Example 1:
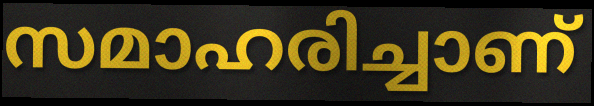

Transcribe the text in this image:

സമാഹരിച്ചാണ്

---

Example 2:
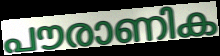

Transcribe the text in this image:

പൗരാണിക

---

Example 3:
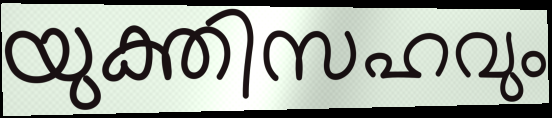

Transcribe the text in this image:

യുക്തിസഹവും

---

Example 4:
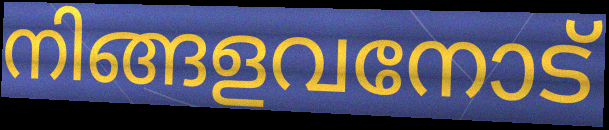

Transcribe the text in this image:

നിങ്ങളവനോട്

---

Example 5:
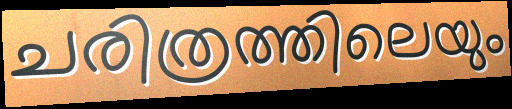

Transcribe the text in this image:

ചരിത്രത്തിലെയും